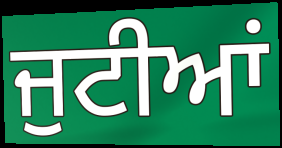
ਜੁਟੀਆਂ